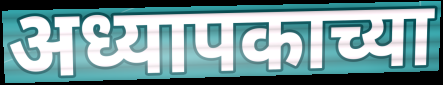
अध्यापकाच्या